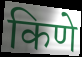
किणे